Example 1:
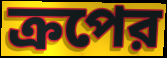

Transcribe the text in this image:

ক্রপের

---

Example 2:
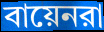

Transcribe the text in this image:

বায়েনরা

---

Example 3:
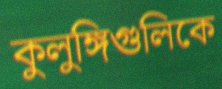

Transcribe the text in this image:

কুলুঙ্গিগুলিকে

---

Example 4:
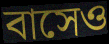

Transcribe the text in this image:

বাসেও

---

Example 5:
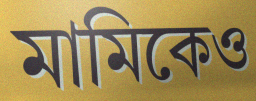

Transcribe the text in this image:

মামিকেও